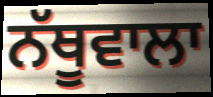
ਨੱਥੂਵਾਲਾ